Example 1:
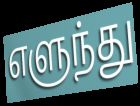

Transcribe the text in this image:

எளுந்து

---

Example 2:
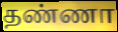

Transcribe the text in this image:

தண்ணா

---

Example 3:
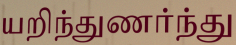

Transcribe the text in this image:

யறிந்துணர்ந்து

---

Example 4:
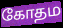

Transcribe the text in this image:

கோதம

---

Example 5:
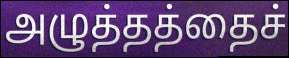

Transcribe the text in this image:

அழுத்தத்தைச்